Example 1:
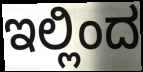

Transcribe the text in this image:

ಇಲ್ಲಿಂದ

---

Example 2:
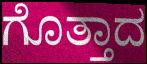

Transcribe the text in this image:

ಗೊತ್ತಾದ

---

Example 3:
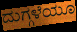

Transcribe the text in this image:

ದುಗ್ಗಳೆಯೂ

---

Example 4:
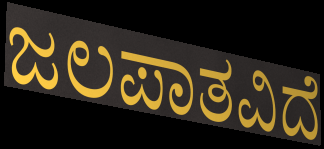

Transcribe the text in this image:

ಜಲಪಾತವಿದೆ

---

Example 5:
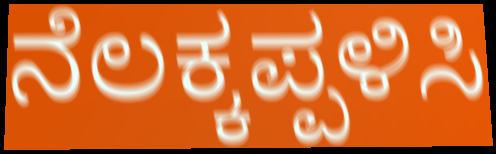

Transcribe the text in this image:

ನೆಲಕ್ಕಪ್ಪಳಿಸಿ